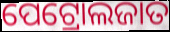
ପେଟ୍ରୋଲଜାତ